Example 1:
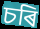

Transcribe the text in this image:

চৰি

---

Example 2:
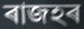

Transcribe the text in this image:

ৰাজহৰ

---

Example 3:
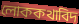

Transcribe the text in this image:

লোককথাবিদ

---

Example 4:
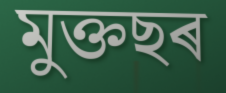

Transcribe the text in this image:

মুক্তছৰ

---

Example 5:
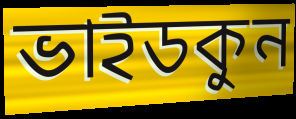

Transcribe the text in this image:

ভাইডকুন